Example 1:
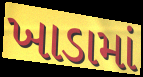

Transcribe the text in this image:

ખાડામાં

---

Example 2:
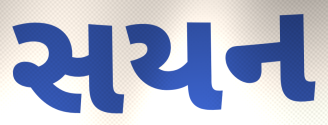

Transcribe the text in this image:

સયન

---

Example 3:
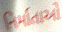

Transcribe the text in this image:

નિર્માતાઓ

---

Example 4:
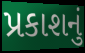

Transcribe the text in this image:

પ્રકાશનું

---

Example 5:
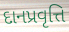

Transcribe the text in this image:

દાનપ્રવૃત્તિ